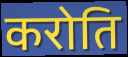
करोति